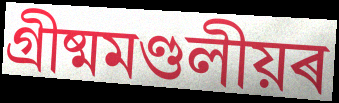
গ্ৰীষ্মমণ্ডলীয়ৰ